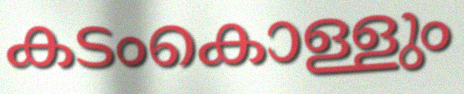
കടംകൊള്ളും